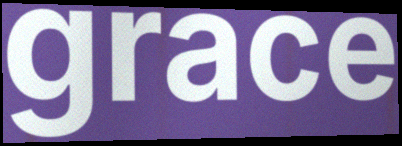
grace